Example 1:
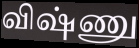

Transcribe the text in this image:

விஷ்ணு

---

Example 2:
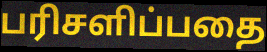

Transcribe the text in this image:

பரிசளிப்பதை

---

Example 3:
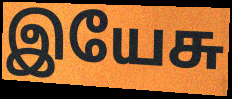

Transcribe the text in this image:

இயேசு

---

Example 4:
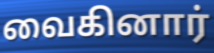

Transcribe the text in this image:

வைகினார்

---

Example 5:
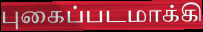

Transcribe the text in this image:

புகைப்படமாக்கி